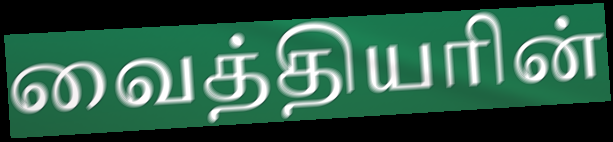
வைத்தியரின்